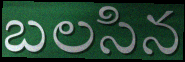
బలసిన